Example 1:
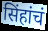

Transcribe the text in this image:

सिंहांचं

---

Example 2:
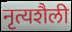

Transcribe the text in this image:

नृत्यशैली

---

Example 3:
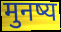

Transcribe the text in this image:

मुनष्य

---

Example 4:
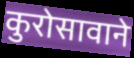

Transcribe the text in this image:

कुरोसावाने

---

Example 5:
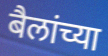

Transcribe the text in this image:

बैलांच्या